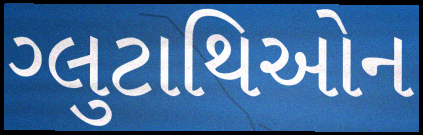
ગ્લુટાથિઓન